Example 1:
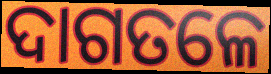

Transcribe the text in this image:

ଦାଗତଳେ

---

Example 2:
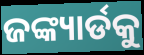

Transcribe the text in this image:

ଜଙ୍କ୍ୟାର୍ଡକୁ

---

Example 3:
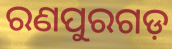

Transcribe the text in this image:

ରଣପୁରଗଡ଼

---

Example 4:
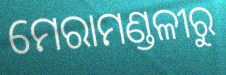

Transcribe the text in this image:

ମେରାମଣ୍ଡଳୀରୁ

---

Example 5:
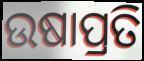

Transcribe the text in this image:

ଉଷାପ୍ରତି